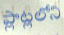
ప్లాట్లలోని